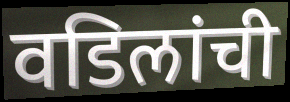
वडिलांची